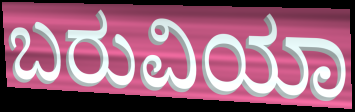
ಬರುವಿಯಾ